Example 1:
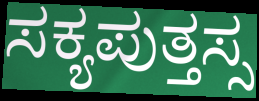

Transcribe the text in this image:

ಸಕ್ಯಪುತ್ತಸ್ಸ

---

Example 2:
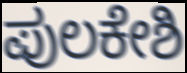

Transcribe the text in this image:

ಪುಲಕೇಶಿ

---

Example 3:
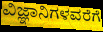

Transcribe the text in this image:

ವಿಜ್ಞಾನಿಗಳವರೆಗೆ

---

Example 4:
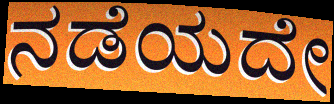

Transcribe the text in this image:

ನಡೆಯದೇ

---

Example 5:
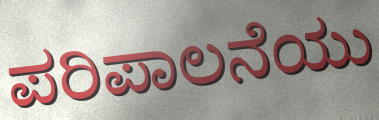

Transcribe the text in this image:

ಪರಿಪಾಲನೆಯು